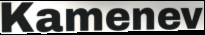
Kamenev